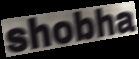
shobha